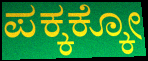
ಪಕ್ಕಕ್ಕೋ